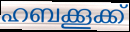
ഹബക്കൂക്ക്